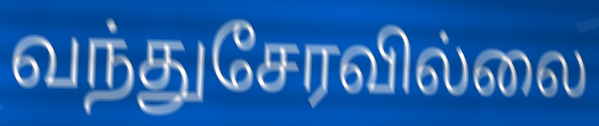
வந்துசேரவில்லை